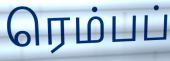
ரெம்பப்